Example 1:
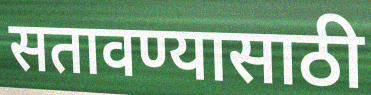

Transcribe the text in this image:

सतावण्यासाठी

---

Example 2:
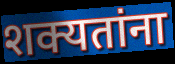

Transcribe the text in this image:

शक्यतांना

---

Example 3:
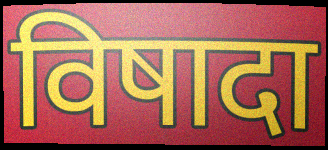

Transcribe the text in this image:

विषादा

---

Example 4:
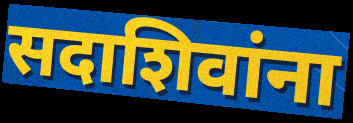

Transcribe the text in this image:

सदाशिवांना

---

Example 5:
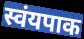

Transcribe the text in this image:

स्वंयपाक